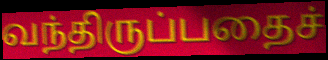
வந்திருப்பதைச்